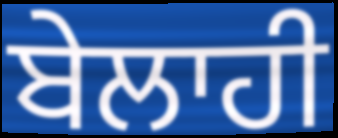
ਬੇਲਾਹੀ